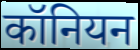
कॉनियन